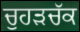
ਚੁਹੜਚੱਕ